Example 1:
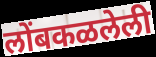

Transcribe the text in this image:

लोंबकळलेली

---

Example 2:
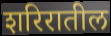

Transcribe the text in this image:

शरिरातील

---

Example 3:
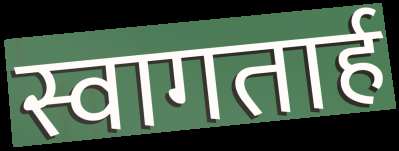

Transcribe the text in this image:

स्वागतार्ह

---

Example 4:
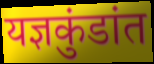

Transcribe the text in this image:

यज्ञकुंडांत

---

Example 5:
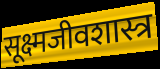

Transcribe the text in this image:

सूक्ष्मजीवशास्त्र